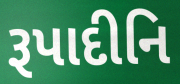
રૂપાદીનિ